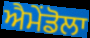
ਐਮੇਂਡੋਲਾ